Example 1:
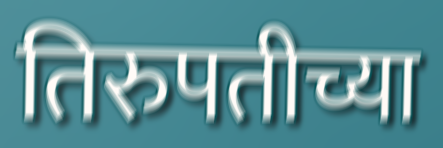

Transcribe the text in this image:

तिरुपतीच्या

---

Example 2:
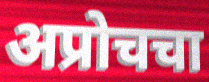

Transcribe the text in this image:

अप्रोचचा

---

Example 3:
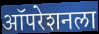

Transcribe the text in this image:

ऑपरेशनला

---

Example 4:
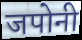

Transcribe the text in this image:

जपोनी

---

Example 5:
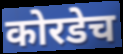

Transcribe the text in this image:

कोरडेच